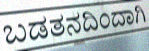
ಬಡತನದಿಂದಾಗಿ